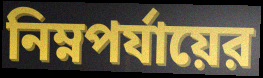
নিম্নপর্যায়ের